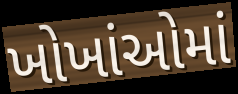
ખોખાંઓમાં